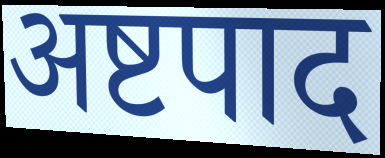
अष्टपाद